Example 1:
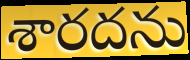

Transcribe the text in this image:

శారదను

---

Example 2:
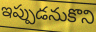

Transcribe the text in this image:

ఇప్పుడనుకొని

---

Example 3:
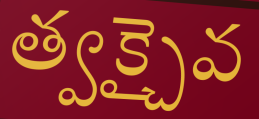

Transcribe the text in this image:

త్వక్చైవ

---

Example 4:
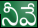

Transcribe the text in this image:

నీవే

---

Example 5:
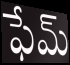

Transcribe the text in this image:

ఫేమ్